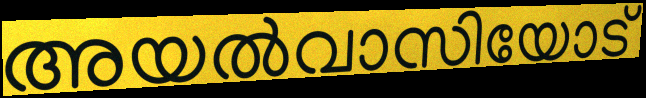
അയൽവാസിയോട്